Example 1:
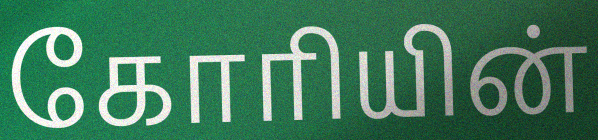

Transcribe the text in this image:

கோரியின்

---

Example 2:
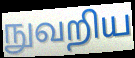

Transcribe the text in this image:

நுவறிய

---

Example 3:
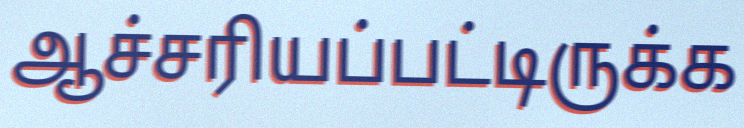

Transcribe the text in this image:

ஆச்சரியப்பட்டிருக்க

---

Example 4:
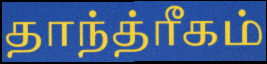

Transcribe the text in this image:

தாந்த்ரீகம்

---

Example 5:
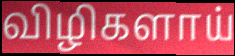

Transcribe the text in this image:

விழிகளாய்